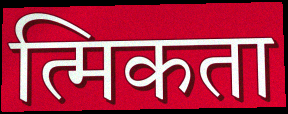
त्मिकता